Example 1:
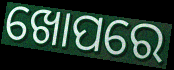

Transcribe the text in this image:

ଖୋପରେ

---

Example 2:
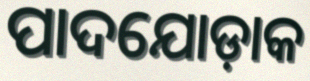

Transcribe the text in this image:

ପାଦଯୋଡ଼ାକ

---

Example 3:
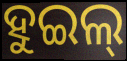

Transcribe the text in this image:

ହୁଇଲ୍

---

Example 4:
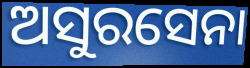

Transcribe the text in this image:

ଅସୁରସେନା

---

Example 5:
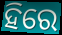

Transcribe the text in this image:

ହିରେ